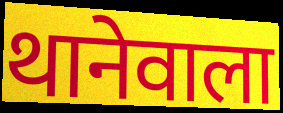
थानेवाला